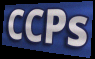
CCPs